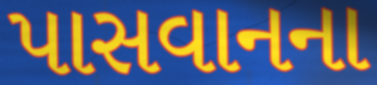
પાસવાનના